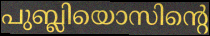
പുബ്ലിയൊസിന്റെ